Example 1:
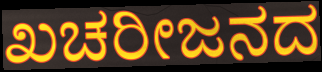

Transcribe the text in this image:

ಖಚರೀಜನದ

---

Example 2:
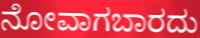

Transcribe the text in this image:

ನೋವಾಗಬಾರದು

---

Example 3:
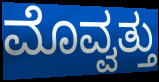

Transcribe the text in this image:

ಮೊವ್ವತ್ತು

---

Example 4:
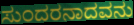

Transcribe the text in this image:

ಸುಂದರನಾದವನು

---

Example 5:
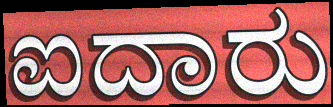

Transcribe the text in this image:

ಐದಾರು